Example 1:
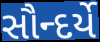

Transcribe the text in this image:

સૌન્દર્યે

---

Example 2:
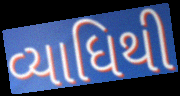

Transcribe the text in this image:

વ્યાધિથી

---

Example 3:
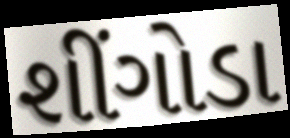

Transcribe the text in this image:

શીંગોડા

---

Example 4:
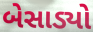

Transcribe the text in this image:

બેસાડ્યો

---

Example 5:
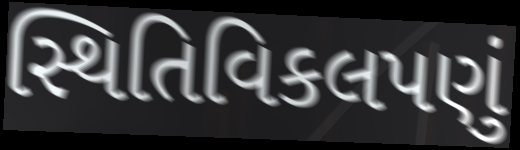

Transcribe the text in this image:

સ્થિતિવિકલપણું